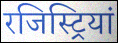
रजिस्ट्रियां